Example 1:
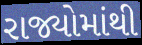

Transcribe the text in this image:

રાજ્યોમાંથી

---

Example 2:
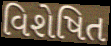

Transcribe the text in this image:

વિશેષિત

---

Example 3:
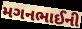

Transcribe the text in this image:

મગનભાઈની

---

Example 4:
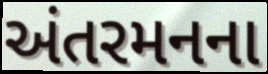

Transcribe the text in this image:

અંતરમનના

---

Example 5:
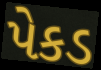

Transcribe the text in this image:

પેકડ